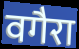
वगैरा